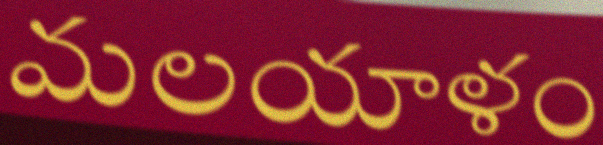
మలయాళం